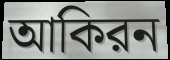
আকিরন